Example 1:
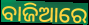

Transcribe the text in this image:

ବାଜିଆରେ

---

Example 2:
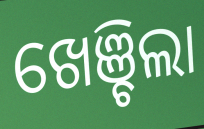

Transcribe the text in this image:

ଖେଞ୍ଚିଲା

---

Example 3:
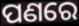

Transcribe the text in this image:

ପଣରେ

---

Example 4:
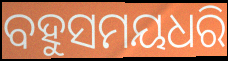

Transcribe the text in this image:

ବହୁସମୟଧରି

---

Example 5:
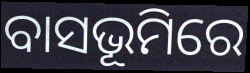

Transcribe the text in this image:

ବାସଭୂମିରେ